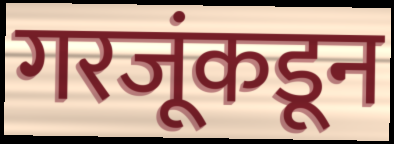
गरजूंकडून